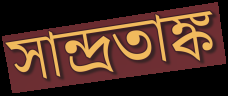
সান্দ্রতাঙ্ক